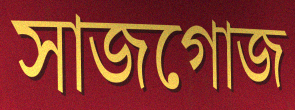
সাজগোজ